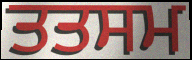
ਤਤਸਮ